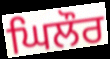
ਘਿਲੌਰ